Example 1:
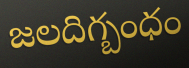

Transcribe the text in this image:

జలదిగ్బంధం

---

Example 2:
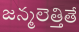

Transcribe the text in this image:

జన్మలెత్తితే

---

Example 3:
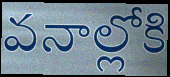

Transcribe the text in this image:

వనాల్లోకి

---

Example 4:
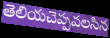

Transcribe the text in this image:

తెలియచెప్పవలసిన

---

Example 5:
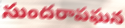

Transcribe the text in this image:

సుందరాపఘన